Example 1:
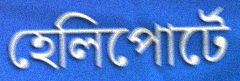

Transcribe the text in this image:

হেলিপোর্টে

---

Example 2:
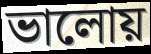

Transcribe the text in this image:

ভালোয়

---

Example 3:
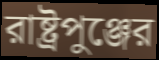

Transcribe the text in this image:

রাষ্ট্রপুঞ্জের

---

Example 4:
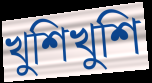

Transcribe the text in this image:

খুশিখুশি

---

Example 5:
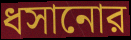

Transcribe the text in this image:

ধসানোর